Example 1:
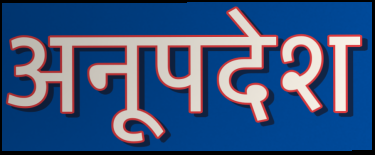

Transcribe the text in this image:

अनूपदेश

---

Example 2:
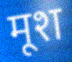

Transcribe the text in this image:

मूश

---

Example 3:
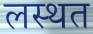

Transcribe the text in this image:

लस्थत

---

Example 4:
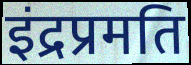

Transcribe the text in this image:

इंद्रप्रमति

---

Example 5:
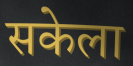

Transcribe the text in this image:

सकेला